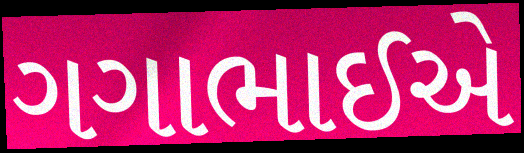
ગગાભાઈએ